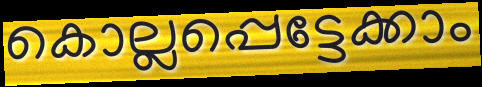
കൊല്ലപ്പെട്ടേക്കാം